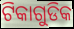
ଟିକାଗୁଡିକ